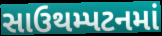
સાઉથમ્પટનમાં